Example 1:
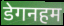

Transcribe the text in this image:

डेगनहम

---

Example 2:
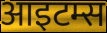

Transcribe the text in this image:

आइटम्‍स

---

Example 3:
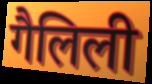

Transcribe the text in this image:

गैलिली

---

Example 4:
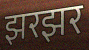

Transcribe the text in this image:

झरझर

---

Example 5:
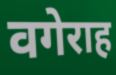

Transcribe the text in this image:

वगेराह